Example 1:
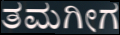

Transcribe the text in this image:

ತಮಗೀಗ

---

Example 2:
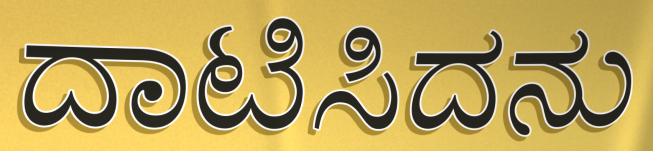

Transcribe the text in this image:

ದಾಟಿಸಿದನು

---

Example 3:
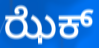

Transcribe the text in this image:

ಝೆಕ್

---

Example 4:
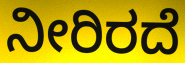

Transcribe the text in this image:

ನೀರಿರದೆ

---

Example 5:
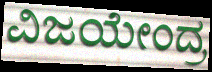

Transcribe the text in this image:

ವಿಜಯೇಂದ್ರ